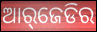
ଆର୍‌ଜେଡିର